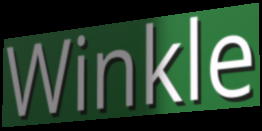
Winkle